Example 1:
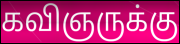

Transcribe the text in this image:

கவிஞருக்கு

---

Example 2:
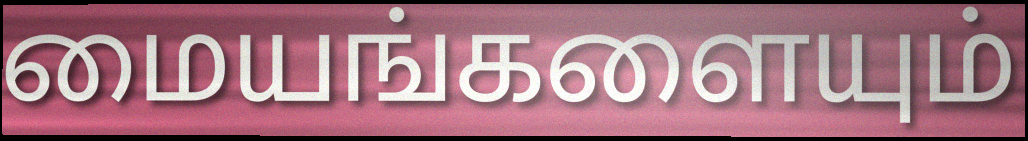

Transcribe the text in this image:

மையங்களையும்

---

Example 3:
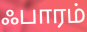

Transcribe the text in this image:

ஃபாரம்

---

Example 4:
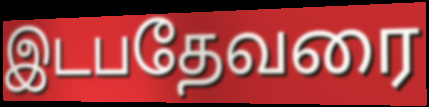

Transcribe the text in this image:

இடபதேவரை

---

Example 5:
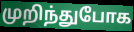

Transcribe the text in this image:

முறிந்துபோக